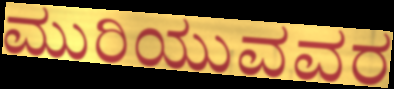
ಮುರಿಯುವವರ